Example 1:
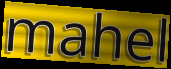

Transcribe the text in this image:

mahel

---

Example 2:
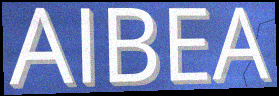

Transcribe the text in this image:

AIBEA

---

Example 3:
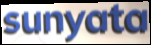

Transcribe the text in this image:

sunyata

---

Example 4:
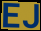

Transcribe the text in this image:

EJ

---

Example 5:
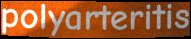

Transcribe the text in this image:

polyarteritis